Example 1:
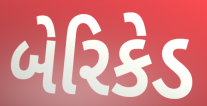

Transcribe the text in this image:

બેરિકેડ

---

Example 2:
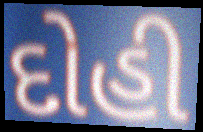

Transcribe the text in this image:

દોહી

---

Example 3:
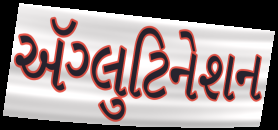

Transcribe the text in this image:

ઍગ્લુટિનેશન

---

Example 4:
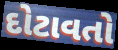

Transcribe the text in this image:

દોટાવતો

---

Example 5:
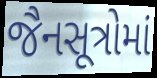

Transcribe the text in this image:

જૈનસૂત્રોમાં